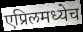
एप्रिलमध्येच